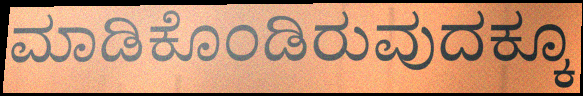
ಮಾಡಿಕೊಂಡಿರುವುದಕ್ಕೂ